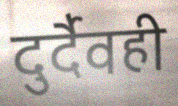
दुर्दैवही